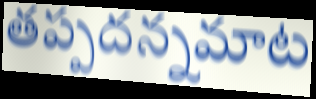
తప్పదన్నమాట